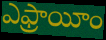
ఎఫ్రాయీం